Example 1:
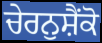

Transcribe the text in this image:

ਚੇਰਨੁਸ਼ੈਂਕੋ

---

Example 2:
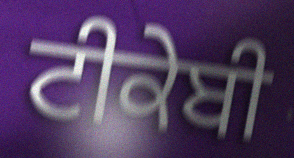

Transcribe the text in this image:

ਟੀਕੇਬੀ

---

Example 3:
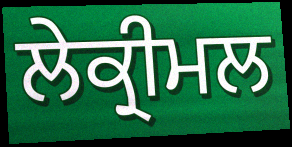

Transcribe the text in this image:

ਲੇਕ੍ਰੀਮਲ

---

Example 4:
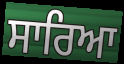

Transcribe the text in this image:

ਸਾਰਿਆ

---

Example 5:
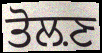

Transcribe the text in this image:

ਤੋਲ਼ਣ